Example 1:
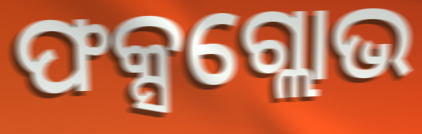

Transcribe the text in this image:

ଫକ୍ସଗ୍ଲୋଭ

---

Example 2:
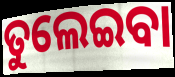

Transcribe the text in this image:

ତୁଲେଇବା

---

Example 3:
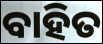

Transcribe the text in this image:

ବାହିତ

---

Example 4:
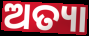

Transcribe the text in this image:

ଅତ୍ୟା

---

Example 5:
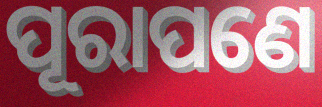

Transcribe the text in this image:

ପୂରାପଣେ